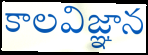
కాలవిజ్ఞాన